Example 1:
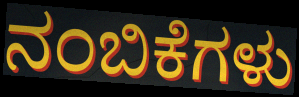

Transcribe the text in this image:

ನಂಬಿಕೆಗಳು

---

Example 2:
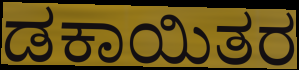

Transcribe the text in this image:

ಡಕಾಯಿತರ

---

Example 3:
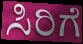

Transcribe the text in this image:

ಸಿರಿಗೆ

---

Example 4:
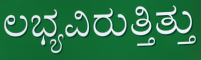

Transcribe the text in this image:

ಲಭ್ಯವಿರುತ್ತಿತ್ತು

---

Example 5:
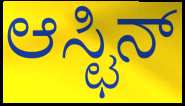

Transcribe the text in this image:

ಆಸ್ಟಿನ್